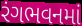
રંગભવનમાં